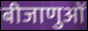
बीजाणुओं